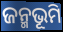
ଜନ୍ମଭୂମି